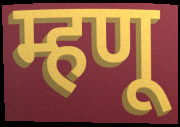
म्हणू